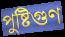
পুষ্টিগুণ